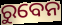
ରୁବେନ